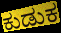
ಕುಡುಕ